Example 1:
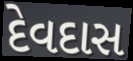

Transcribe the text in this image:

દેવદાસ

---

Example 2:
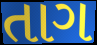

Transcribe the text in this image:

તાગ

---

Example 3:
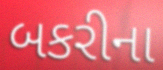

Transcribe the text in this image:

બકરીના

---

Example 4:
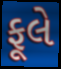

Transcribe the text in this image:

ફૂલે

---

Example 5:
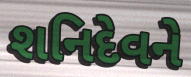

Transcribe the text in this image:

શનિદેવને